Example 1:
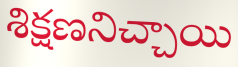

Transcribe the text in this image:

శిక్షణనిచ్చాయి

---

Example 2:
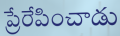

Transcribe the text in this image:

ప్రేరేపించాడు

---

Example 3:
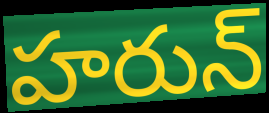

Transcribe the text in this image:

హరున్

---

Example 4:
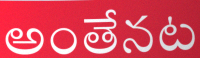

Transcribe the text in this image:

అంతేనట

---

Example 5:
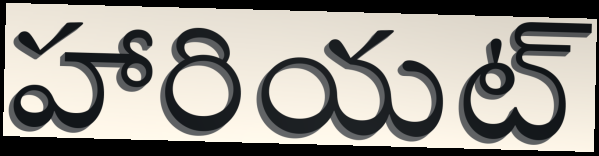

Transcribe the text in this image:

హారియట్